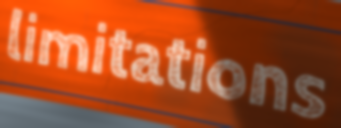
limitations